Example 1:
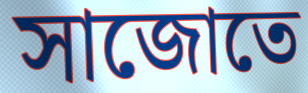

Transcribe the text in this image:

সাজোতে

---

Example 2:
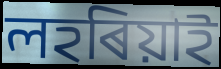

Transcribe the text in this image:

লহৰিয়াই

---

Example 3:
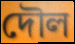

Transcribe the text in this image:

দৌল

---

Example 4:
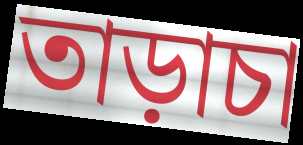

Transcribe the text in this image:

তাড়াচা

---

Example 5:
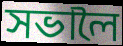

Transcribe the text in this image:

সভালৈ